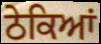
ਠੇਕਿਆਂ